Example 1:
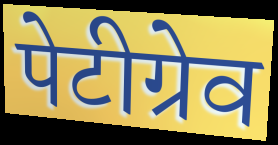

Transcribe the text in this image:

पेटीग्रेव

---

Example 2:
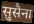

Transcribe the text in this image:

सुसैना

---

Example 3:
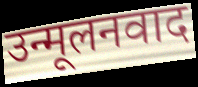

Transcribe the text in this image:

उन्मूलनवाद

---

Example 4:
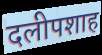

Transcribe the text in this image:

दलीपशाह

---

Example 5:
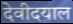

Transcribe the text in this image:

देवीदयाल